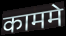
काममे